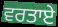
ਵਰਤਾਏ